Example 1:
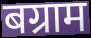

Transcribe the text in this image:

बग्राम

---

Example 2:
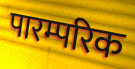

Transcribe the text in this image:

पारम्परिक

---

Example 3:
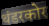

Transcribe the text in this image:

थंडरकोर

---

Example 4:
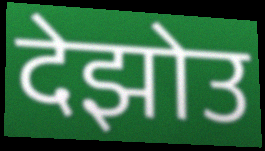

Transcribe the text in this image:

देझोउ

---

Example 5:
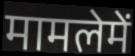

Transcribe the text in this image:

मामलेमें